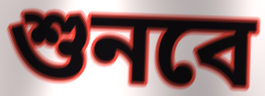
শুনবে